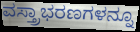
ವಸ್ತ್ರಾಭರಣಗಳನ್ನೂ